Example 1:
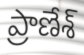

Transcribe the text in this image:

ప్రాణేశ్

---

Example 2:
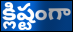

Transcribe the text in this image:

క్లిష్టంగా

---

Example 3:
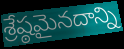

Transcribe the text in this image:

శ్రేష్ఠమైనదాన్ని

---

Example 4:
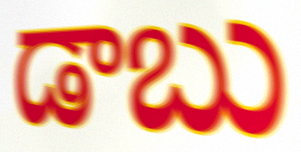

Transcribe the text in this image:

డాబు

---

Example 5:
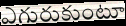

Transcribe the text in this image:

ఎగురుకుంటూ